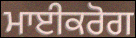
ਮਾਈਕਰੋਗ